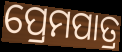
ପ୍ରେମପାତ୍ର